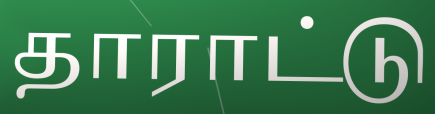
தாராட்டு